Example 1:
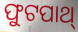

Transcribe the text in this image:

ଫୁଟପାଥ୍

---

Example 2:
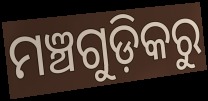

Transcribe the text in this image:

ମଞ୍ଚଗୁଡ଼ିକରୁ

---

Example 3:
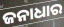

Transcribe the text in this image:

ଜନାଧାର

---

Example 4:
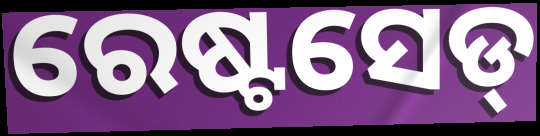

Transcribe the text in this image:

ରେଷ୍ଟସେଡ୍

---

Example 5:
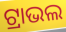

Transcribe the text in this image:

ଟ୍ରାଭଲ